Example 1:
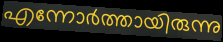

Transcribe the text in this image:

എന്നോർത്തായിരുന്നു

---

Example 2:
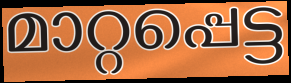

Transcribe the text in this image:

മാറ്റപ്പെട്ട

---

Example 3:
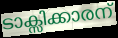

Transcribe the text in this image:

ടാക്സിക്കാരന്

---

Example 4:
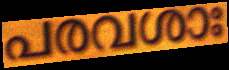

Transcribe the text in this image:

പരവശാഃ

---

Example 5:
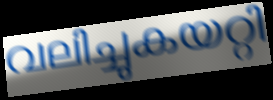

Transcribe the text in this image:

വലിച്ചുകയറ്റി